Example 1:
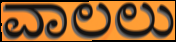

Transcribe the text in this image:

ವಾಲಲು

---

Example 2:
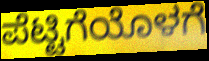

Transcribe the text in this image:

ಪೆಟ್ಟಿಗೆಯೊಳಗೆ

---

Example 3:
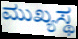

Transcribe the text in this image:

ಮುಖ್ಯಸ್ಥ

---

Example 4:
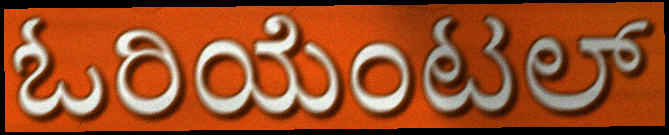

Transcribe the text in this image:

ಓರಿಯೆಂಟಲ್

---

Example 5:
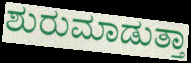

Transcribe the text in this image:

ಶುರುಮಾಡುತ್ತಾ